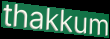
thakkum